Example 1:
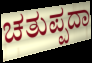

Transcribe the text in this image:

ಚತುಪ್ಪದಾ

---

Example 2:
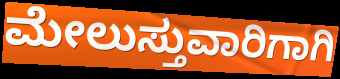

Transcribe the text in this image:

ಮೇಲುಸ್ತುವಾರಿಗಾಗಿ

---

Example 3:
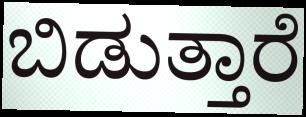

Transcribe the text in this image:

ಬಿಡುತ್ತಾರೆ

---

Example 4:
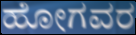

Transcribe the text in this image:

ಹೋಗವರ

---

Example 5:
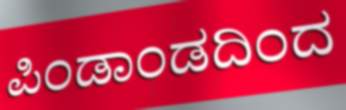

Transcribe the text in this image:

ಪಿಂಡಾಂಡದಿಂದ